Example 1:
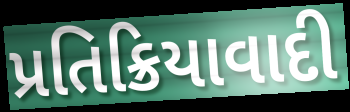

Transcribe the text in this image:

પ્રતિક્રિયાવાદી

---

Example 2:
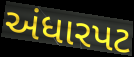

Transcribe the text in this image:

અંધારપટ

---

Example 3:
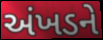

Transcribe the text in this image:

અંખડને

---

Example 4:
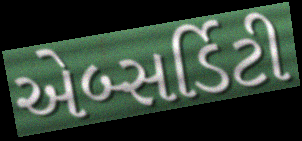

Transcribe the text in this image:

એબ્સર્ડિટી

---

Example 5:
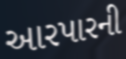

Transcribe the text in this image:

આરપારની